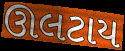
ઊલટાય